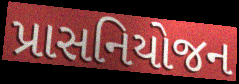
પ્રાસનિયોજન